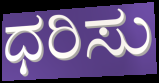
ಧರಿಸು